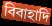
বিবাহাদি